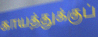
காயத்துக்குப்